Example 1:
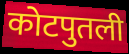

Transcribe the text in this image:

कोटपुतली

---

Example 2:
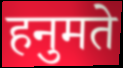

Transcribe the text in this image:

हनुमते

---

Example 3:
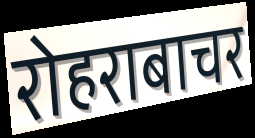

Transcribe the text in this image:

रोहराबाचर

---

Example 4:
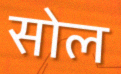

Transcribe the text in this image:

सोल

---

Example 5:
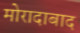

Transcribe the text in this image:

मोरादाबाद